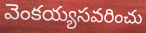
వెంకయ్యసవరించు